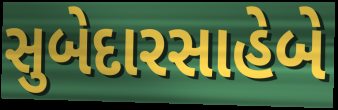
સુબેદારસાહેબે